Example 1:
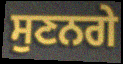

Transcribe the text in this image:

ਸੁਣਨਗੇ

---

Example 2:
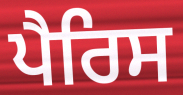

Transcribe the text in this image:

ਪੈਰਿਸ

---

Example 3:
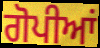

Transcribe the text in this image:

ਗੋਪੀਆਂ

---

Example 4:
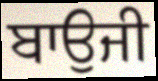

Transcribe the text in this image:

ਬਾਉਜੀ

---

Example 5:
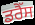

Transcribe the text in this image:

ਡਰੈੱਸ